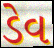
ડેવ